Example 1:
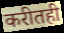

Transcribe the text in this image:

करीतही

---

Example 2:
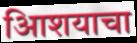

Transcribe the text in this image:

आिशयाचा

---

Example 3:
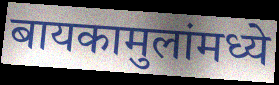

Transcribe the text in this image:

बायकामुलांमध्ये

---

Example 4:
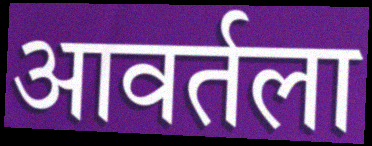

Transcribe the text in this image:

आवर्तला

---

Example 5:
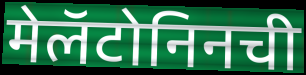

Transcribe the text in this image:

मेलॅटोनिनची